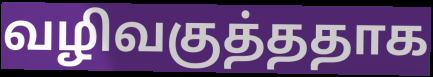
வழிவகுத்ததாக